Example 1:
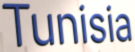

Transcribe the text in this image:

Tunisia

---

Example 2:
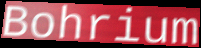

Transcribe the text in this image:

Bohrium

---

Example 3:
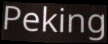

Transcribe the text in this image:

Peking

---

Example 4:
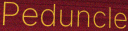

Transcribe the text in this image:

Peduncle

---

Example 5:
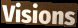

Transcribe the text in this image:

Visions